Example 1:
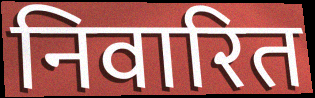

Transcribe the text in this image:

निवारित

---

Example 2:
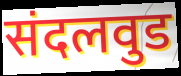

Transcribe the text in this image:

संदलवुड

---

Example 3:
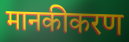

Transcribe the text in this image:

मानकीकरण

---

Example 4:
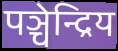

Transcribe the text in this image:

पञ्चेन्द्रिय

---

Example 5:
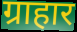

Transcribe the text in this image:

ग्राहार